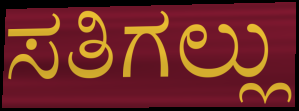
ಸತಿಗಲ್ಲು